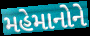
મહેમાનોને